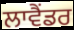
ਲਾਵੈਂਡਰ